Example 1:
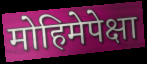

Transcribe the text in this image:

मोहिमेपेक्षा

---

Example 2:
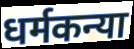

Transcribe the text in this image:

धर्मकन्या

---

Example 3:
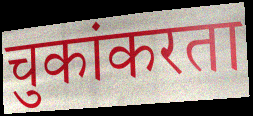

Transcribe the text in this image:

चुकांकरता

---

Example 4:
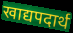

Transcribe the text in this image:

खाद्यपदार्थ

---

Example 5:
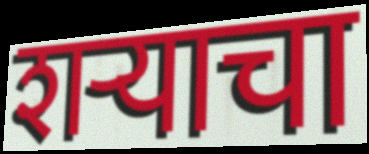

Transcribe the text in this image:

शर्‍याचा